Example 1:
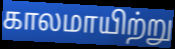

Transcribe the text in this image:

காலமாயிற்று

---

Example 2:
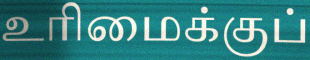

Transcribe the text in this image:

உரிமைக்குப்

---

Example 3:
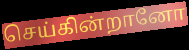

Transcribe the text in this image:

செய்கின்றானோ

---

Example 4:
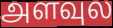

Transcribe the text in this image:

அளவுல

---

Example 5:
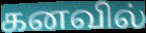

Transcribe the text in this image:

கனவில்